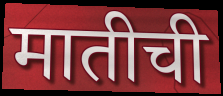
मातीची